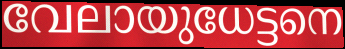
വേലായുധേട്ടനെ